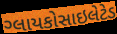
ગ્લાયકોસાઇલેટેડ